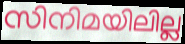
സിനിമയിലില്ല